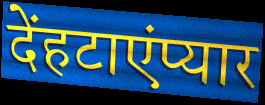
देंहटाएंप्यार